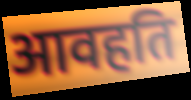
आवहति